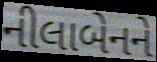
નીલાબેનને